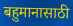
बहुमानासाठी